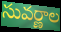
సువర్ణాల